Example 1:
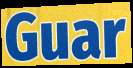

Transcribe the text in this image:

Guar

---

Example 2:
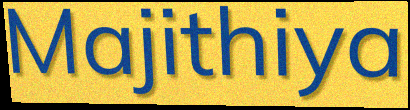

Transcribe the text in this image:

Majithiya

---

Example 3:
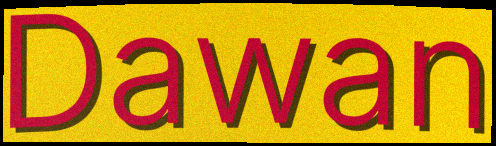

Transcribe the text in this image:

Dawan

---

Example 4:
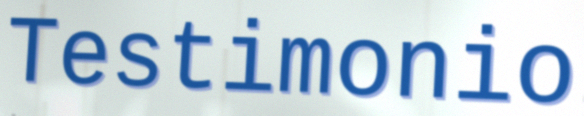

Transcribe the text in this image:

Testimonio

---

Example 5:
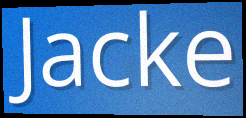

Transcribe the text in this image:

Jacke